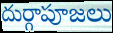
దుర్గాపూజలు